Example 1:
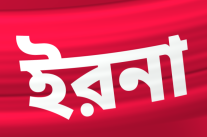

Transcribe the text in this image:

ইরনা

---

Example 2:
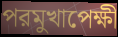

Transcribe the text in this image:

পরমুখাপেক্ষী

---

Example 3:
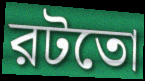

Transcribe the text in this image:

রটতো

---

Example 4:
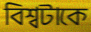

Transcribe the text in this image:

বিশ্বটাকে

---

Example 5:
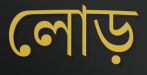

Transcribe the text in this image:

লোড়